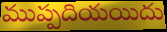
ముప్పదియయిదు